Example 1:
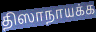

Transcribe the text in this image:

திஸாநாயக்க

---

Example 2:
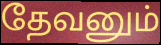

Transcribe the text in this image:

தேவனும்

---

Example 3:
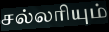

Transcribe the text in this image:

சல்லரியும்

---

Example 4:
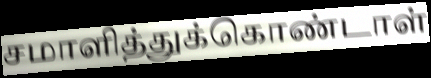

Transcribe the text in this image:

சமாளித்துக்கொண்டாள்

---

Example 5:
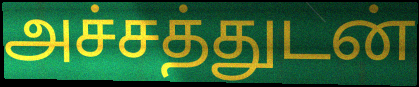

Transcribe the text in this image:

அச்சத்துடன்